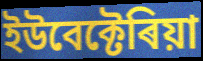
ইউবেক্টেৰিয়া